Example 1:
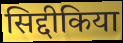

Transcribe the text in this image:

सिद्दीकिया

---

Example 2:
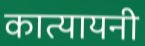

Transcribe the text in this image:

कात्यायनी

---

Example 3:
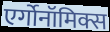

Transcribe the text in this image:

एर्गोनॉमिक्स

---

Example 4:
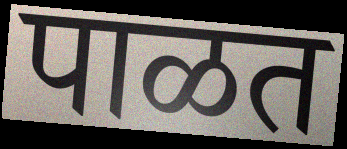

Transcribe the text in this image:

पाळत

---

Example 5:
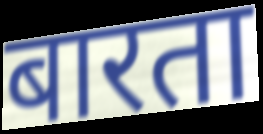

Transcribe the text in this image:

बारता